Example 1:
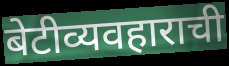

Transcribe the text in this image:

बेटीव्यवहाराची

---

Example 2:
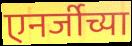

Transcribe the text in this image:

एनर्जीच्या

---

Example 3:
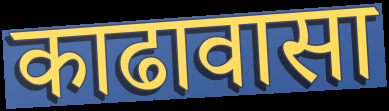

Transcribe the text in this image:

काढावासा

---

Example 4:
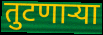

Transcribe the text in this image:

तुटणार्‍या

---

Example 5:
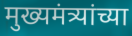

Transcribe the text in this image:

मुख्यमंत्र्यांच्या